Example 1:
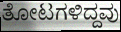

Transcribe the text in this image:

ತೋಟಗಳಿದ್ದವು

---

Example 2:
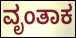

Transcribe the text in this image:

ವೃಂತಾಕ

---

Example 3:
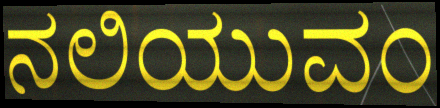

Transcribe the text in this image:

ನಲಿಯುವಂ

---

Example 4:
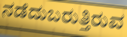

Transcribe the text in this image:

ನಡೆದುಬರುತ್ತಿರುವ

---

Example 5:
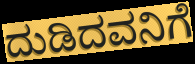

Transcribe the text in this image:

ದುಡಿದವನಿಗೆ